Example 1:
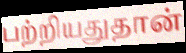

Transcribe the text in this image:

பற்றியதுதான்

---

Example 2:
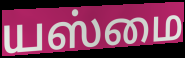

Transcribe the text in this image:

யஸ்மை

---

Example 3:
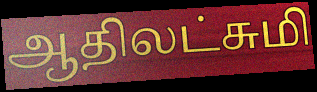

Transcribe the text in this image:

ஆதிலட்சுமி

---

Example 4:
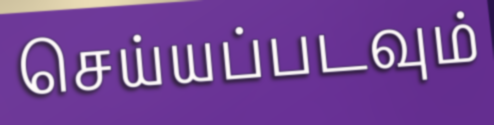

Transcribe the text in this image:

செய்யப்படவும்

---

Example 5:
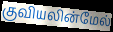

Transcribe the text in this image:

குவியலின்மேல்